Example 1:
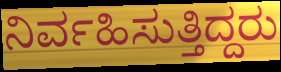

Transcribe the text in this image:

ನಿರ್ವಹಿಸುತ್ತಿದ್ದರು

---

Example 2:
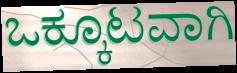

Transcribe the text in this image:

ಒಕ್ಕೂಟವಾಗಿ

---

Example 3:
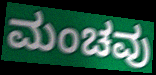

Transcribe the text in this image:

ಮಂಚವು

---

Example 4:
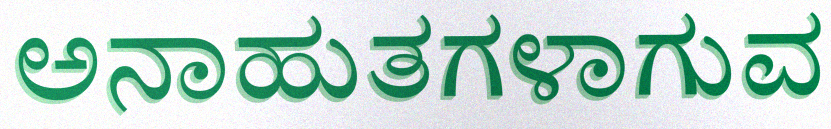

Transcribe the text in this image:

ಅನಾಹುತಗಳಾಗುವ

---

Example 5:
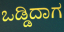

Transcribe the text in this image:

ಒಡ್ಡಿದಾಗ